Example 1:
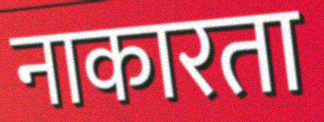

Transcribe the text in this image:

नाकारता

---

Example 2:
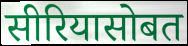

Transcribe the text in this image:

सीरियासोबत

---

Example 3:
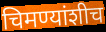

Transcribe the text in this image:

चिमण्यांशीच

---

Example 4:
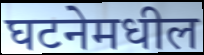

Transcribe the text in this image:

घटनेमधील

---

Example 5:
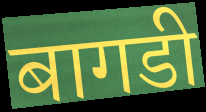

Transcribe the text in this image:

बागडी